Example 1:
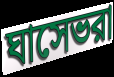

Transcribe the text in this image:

ঘাসেভরা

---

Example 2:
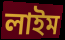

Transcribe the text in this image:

লাইম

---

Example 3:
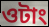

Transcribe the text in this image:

ওটাং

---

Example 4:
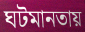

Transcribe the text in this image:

ঘটমানতায়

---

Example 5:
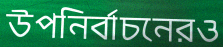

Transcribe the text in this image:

উপনির্বাচনেরও